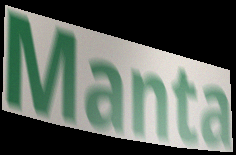
Manta